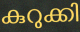
കുറുക്കി